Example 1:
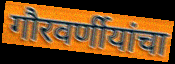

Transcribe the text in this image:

गौरवर्णीयांचा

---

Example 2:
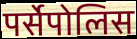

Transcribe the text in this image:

पर्सेपोलिस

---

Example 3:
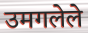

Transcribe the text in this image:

उमगलेले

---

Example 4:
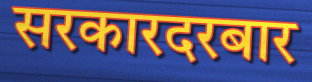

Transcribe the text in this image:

सरकारदरबार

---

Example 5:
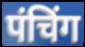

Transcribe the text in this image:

पंचिंग